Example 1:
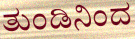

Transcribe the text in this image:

ತುಂಡಿನಿಂದ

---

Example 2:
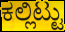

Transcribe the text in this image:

ಕಲ್ಲಿಟ್ಟು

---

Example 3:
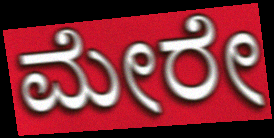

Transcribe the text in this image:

ಮೇರೇ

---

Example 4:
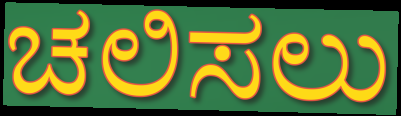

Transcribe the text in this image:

ಚಲಿಸಲು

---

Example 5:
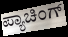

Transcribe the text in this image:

ಪ್ಯಾಚಿಂಗ್